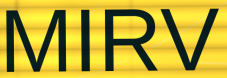
MIRV